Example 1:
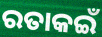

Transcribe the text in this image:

ରତାକଇଁ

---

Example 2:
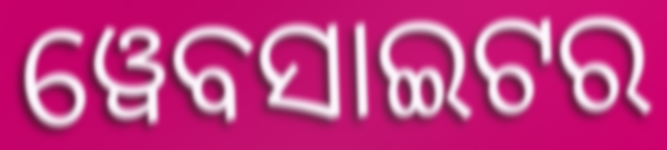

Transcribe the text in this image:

ୱେବସାଇଟର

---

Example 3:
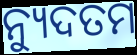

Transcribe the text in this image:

ନ୍ୟୁଦତମ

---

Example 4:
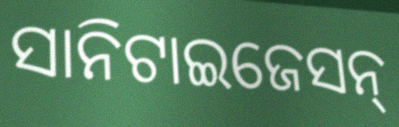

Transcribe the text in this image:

ସାନିଟାଇଜେସନ୍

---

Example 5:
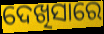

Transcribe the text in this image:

ଦେଖିସାରେ